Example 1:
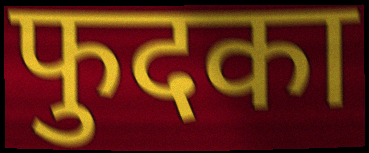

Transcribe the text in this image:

फुदका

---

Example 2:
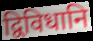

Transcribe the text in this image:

द्विविधानि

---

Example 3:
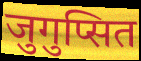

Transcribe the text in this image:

जुगुप्सित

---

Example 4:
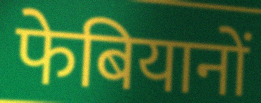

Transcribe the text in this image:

फेबियानों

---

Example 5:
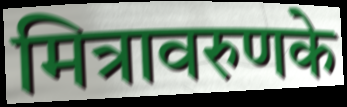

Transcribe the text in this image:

मित्रावरुणके